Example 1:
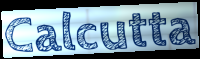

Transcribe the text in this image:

Calcutta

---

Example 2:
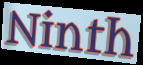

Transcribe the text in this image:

Ninth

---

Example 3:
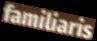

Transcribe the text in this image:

familiaris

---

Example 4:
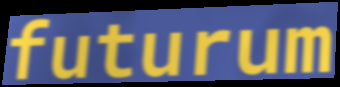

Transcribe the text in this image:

futurum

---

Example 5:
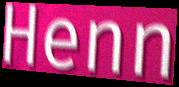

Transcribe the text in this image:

Henn